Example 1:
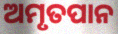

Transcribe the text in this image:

ଅମୃତପାନ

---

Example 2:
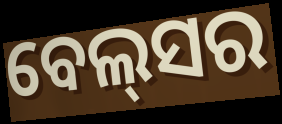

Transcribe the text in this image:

ବେଲ୍‌ସର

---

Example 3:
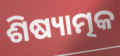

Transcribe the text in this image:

ଶିଷ୍ୟାତ୍ମକ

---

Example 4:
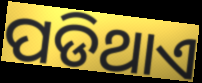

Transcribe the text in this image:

ପଡିଥାଏ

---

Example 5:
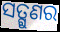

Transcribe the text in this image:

ସତ୍ଗୁଣର